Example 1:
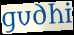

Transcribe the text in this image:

gudhi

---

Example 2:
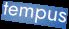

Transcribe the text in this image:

tempus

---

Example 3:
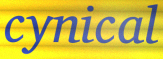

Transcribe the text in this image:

cynical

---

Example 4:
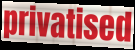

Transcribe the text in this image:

privatised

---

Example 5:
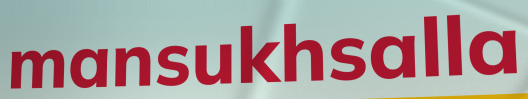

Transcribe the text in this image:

mansukhsalla